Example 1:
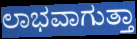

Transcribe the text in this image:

ಲಾಭವಾಗುತ್ತಾ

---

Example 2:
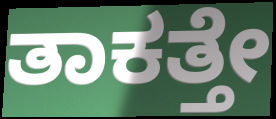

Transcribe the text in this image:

ತಾಕತ್ತೇ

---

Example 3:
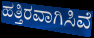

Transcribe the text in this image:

ಹತ್ತಿರವಾಗಿಸಿವೆ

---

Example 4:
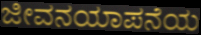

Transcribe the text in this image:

ಜೀವನಯಾಪನೆಯ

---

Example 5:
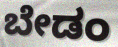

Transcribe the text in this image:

ಬೇಡಂ